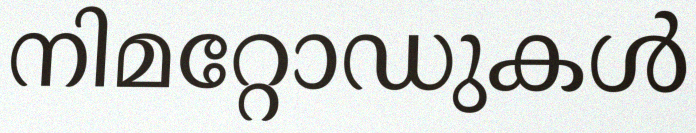
നിമറ്റോഡുകൾ